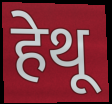
हेथू